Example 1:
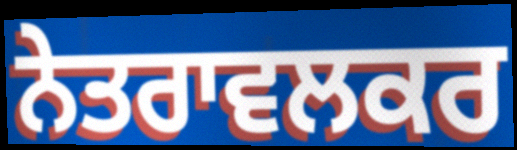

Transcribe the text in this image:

ਨੇਤਰਾਵਲਕਰ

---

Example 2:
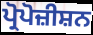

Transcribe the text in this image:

ਪ੍ਰੋਪੋਜ਼ੀਸ਼ਨ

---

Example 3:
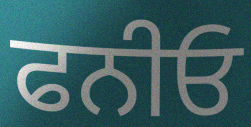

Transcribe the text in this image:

ਫਨੀਓ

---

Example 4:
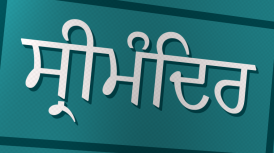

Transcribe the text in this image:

ਸ੍ਰੀਮੰਦਿਰ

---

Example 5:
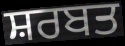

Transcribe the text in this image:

ਸ਼ਰਬਤ